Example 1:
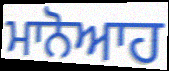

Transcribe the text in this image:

ਮਾਨੋਆਹ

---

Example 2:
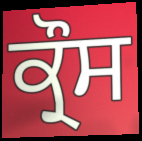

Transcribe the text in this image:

ਕ੍ਰੌਸ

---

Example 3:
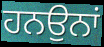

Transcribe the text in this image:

ਹਨਉਨਾਂ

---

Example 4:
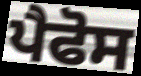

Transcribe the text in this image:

ਪੈਫੋਸ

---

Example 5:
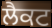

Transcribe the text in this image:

ਲੈਕਟ